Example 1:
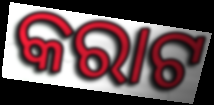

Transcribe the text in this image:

କରାଟ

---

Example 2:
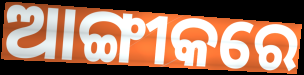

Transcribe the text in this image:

ଆଙ୍ଗୀକରେ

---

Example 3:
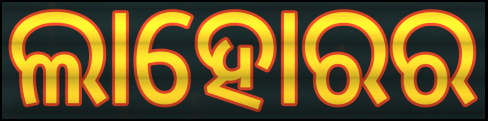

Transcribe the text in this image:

ଲାହୋରର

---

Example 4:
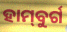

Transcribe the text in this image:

ହାମ୍‌ବୁର୍ଗ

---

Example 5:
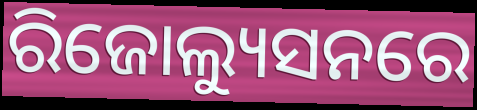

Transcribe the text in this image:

ରିଜୋଲ୍ୟୁସନରେ